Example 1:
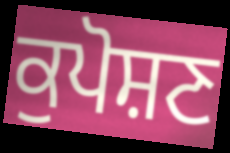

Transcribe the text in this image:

ਕੁਪੋਸ਼ਣ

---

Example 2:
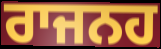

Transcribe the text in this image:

ਰਾਜਨਹ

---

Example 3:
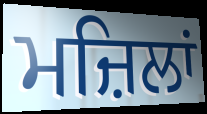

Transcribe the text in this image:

ਮਜ਼ਿਲਾਂ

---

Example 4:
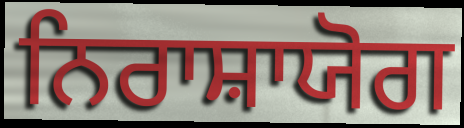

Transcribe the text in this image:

ਨਿਰਾਸ਼ਾਯੋਗ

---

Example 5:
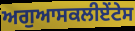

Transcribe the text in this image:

ਅਗੁਆਸਕਲੀਏਂਟੇਸ